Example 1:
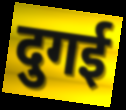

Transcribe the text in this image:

दुगई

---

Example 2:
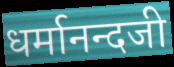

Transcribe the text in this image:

धर्मानन्दजी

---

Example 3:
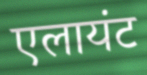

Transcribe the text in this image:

एलायंट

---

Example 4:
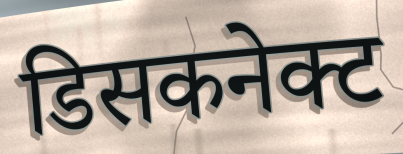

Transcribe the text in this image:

डिसकनेक्ट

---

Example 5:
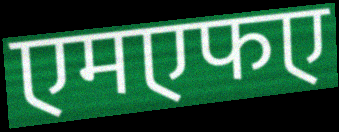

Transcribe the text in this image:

एमएफए